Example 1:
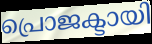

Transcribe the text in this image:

പ്രൊജക്ടായി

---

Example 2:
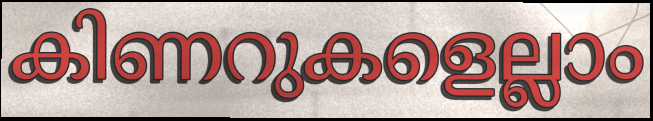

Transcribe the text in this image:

കിണറുകളെല്ലാം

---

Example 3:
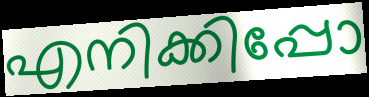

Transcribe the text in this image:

എനിക്കിപ്പോ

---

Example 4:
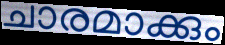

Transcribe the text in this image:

ചാരമാക്കും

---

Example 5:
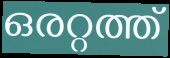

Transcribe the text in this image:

ഒരറ്റത്ത്